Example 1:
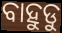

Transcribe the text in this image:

ବାହୁଡୁ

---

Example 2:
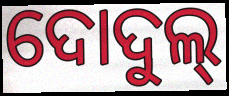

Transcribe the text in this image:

ଦୋଦୁଲ୍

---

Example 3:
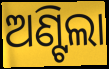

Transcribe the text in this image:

ଅଣ୍ଟିଲା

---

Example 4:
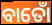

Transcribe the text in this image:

ବାତୋଁ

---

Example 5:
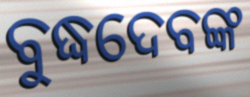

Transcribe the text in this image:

ବୁଦ୍ଧଦେବଙ୍କ